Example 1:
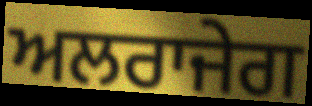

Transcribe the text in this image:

ਅਲਰਾਜੇਗ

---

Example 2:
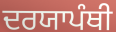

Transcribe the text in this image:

ਦਰਯਾਪੰਥੀ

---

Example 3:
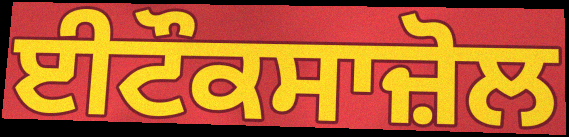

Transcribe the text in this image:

ਈਟੌਕਸਾਜ਼ੋਲ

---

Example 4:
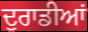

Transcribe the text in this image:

ਦੁਰਾਡੀਆਂ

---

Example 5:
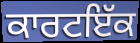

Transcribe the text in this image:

ਕਾਰਟਇੱਕ